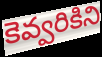
కెవ్వరికిని